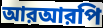
আরআরপি